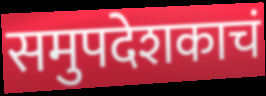
समुपदेशकाचं